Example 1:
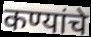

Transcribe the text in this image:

कण्यांचे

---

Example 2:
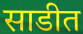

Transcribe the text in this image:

साडीत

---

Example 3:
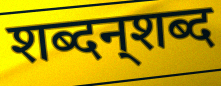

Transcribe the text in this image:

शब्दन्‌शब्द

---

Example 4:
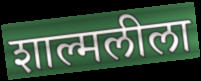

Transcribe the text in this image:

शाल्मलीला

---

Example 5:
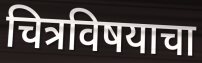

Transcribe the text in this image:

चित्रविषयाचा